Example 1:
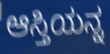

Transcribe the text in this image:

ಆಸ್ತಿಯನ್ನ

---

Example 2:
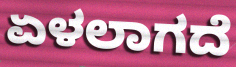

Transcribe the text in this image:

ಏಳಲಾಗದೆ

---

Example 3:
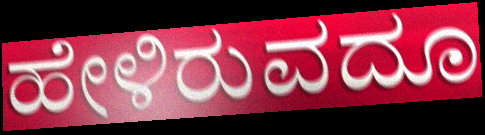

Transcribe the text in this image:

ಹೇಳಿರುವದೂ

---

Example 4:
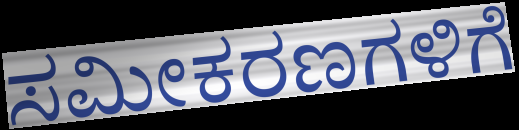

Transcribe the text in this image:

ಸಮೀಕರಣಗಳಿಗೆ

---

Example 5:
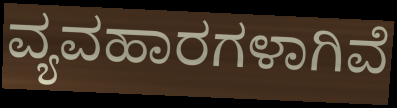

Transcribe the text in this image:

ವ್ಯವಹಾರಗಳಾಗಿವೆ